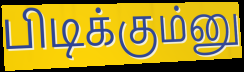
பிடிக்கும்னு